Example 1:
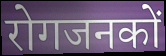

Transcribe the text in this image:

रोगजनकों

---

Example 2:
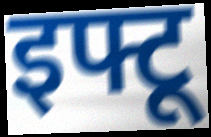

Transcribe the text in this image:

इफ्टू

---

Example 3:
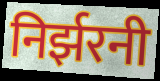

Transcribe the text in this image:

निर्झरनी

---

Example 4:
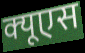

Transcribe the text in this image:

क्यूएस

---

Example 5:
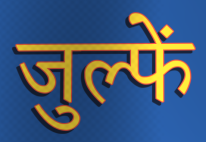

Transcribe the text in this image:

जुल्फें